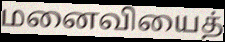
மனைவியைத்